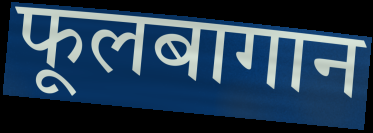
फूलबागान